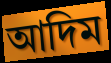
আদিম